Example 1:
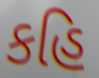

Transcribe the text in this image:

કહિ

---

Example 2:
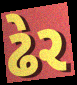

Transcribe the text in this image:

ઢેર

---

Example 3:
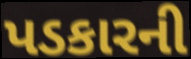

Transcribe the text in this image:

પડકારની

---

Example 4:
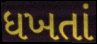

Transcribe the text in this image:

ધખતાં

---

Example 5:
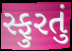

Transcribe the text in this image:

સ્ફુરતું